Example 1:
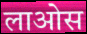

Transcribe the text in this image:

लाओस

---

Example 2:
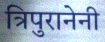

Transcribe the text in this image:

त्रिपुरानेनी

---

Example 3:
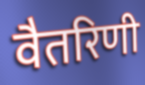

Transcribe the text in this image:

वैतरिणी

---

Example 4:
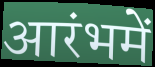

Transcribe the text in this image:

आरंभमें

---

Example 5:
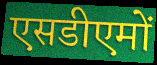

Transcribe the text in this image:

एसडीएमों